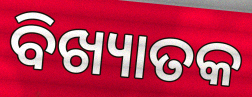
ବିଖ୍ୟାତକ